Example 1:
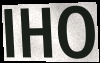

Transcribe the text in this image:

IHO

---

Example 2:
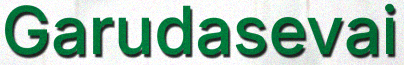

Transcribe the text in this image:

Garudasevai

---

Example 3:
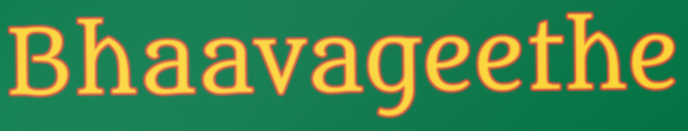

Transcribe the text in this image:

Bhaavageethe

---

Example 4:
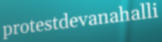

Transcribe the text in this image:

protestdevanahalli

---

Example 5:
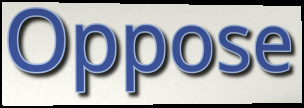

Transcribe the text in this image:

Oppose